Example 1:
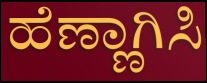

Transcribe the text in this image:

ಹೆಣ್ಣಾಗಿಸಿ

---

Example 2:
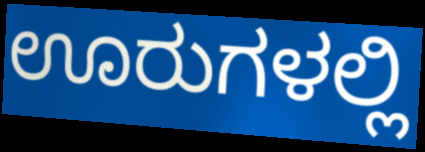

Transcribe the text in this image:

ಊರುಗಳಲ್ಲಿ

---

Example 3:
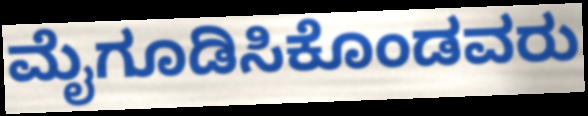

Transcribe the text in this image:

ಮೈಗೂಡಿಸಿಕೊಂಡವರು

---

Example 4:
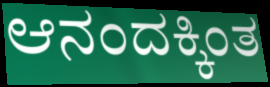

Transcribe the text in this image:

ಆನಂದಕ್ಕಿಂತ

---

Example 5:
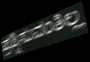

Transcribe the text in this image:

ಪ್ರಶ್ನಿಸುವಂತಿಲ್ಲ